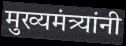
मुख्यमंत्र्यांनी